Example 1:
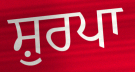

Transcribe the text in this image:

ਸ਼ੁਰਪਾ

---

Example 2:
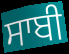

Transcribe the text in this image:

ਸਾਬੀ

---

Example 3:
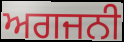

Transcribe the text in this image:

ਅਗਜਨੀ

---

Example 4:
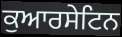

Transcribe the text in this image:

ਕੁਆਰਸੇਟਿਨ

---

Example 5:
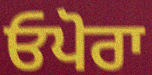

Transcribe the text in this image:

ਓਪੋਰਾ